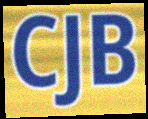
CJB